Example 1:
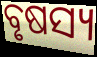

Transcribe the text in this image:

ବୃଷସ୍ୟ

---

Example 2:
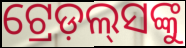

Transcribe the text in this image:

ଟ୍ରେଡ଼ଲ୍‍ସଙ୍କୁ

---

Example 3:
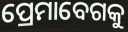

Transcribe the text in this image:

ପ୍ରେମାବେଗକୁ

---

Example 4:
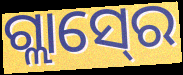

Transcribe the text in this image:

ଗ୍ଲାସ୍‍ରେ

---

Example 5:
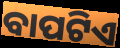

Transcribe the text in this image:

ବାପଟିଏ